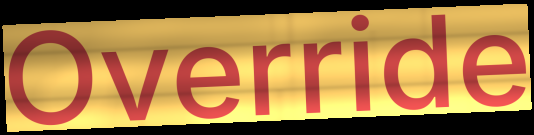
Override